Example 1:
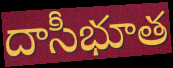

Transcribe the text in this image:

దాసీభూత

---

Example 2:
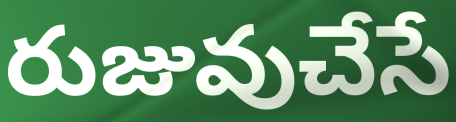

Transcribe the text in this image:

రుజువుచేసే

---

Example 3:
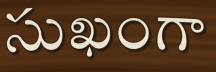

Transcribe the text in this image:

సుఖంగా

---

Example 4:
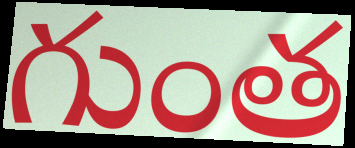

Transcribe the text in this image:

గుంత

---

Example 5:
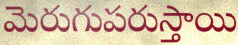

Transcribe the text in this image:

మెరుగుపరుస్తాయి